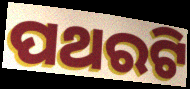
ପଥରଟି